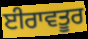
ਈਰਾਵਤੂਰ